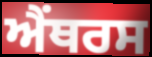
ਐਂਥਰਸ